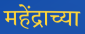
महेंद्राच्या